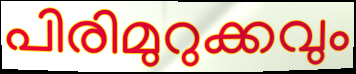
പിരിമുറുക്കവും